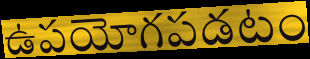
ఉపయోగపడటం